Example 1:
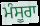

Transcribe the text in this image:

ਮੰਸੂਰਾ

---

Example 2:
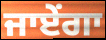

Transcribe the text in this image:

ਜਾਏਂਗਾ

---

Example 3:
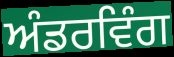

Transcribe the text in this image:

ਅੰਡਰਵਿੰਗ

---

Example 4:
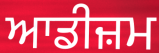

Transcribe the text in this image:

ਆਡੀਜ਼ਮ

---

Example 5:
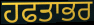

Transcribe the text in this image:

ਹਫਤਾਭਰ